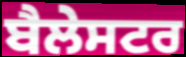
ਬੈਲੇਸਟਰ